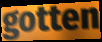
gotten